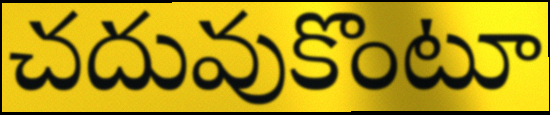
చదువుకొంటూ